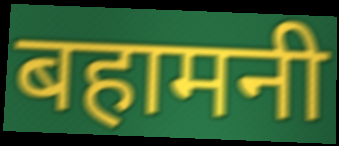
बहामनी